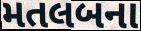
મતલબના